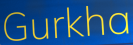
Gurkha